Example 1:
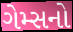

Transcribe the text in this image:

ગેમ્સનો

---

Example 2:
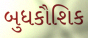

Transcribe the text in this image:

બુધકૌશિક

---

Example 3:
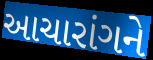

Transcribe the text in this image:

આચારાંગને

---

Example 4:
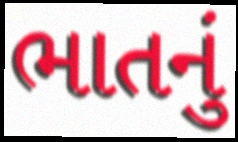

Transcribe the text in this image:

ભાતનું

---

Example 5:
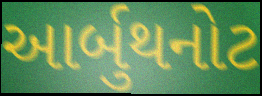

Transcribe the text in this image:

આર્બુથનોટ